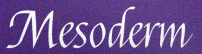
Mesoderm